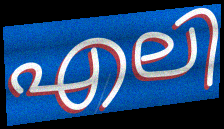
എലി